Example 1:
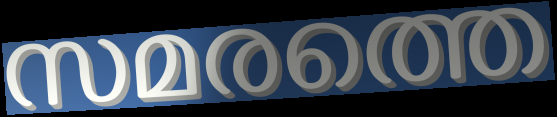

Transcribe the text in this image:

സമരത്തെ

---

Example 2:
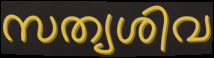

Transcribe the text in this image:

സത്യശിവ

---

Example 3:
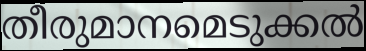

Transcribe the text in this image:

തീരുമാനമെടുക്കൽ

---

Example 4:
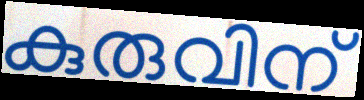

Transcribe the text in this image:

കുരുവിന്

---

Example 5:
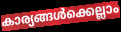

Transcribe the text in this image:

കാര്യങ്ങൾക്കെല്ലാം